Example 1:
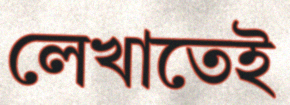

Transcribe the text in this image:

লেখাতেই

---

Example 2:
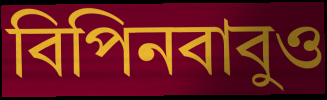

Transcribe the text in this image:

বিপিনবাবুও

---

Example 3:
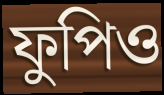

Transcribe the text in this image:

ফুপিও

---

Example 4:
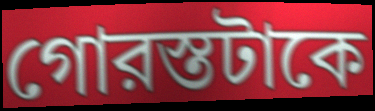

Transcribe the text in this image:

গোরস্তটাকে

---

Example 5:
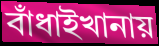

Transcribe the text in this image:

বাঁধাইখানায়